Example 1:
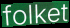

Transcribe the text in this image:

folket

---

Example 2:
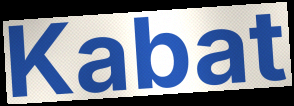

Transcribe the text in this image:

Kabat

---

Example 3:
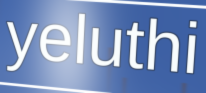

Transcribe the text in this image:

yeluthi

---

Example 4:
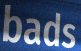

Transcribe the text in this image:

bads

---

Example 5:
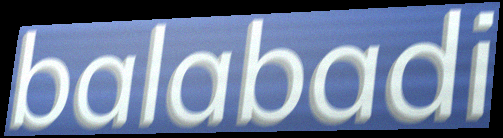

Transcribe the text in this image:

balabadi